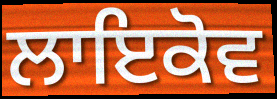
ਲਾਇਕੋਵ